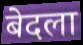
बेदला